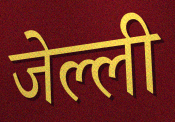
जेल्ली